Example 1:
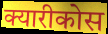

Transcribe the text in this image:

क्यारीकोस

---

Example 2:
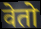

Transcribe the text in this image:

वेतो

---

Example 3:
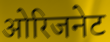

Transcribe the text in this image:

ओरिजनेट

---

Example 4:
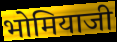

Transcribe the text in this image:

भोमियाजी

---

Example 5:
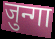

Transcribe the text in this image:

जुन्गा